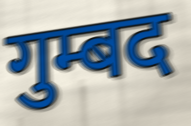
गुम्बद